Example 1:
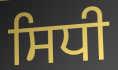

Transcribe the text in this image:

ਸਿਧੀ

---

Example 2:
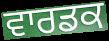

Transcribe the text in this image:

ਵਾਰਡਕ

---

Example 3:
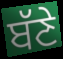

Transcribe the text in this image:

ਬੱਣੇ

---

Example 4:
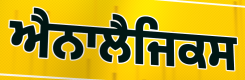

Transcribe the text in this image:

ਐਨਾਲੈਜਿਕਸ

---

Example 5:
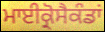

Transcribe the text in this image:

ਮਾਈਕ੍ਰੋਸੈਕੰਡਾਂ